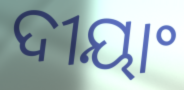
ଦୀୟାଂ